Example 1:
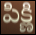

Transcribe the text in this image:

పిక్ణి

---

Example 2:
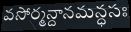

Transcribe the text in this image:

వసోర్మన్దానమన్ధసః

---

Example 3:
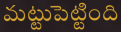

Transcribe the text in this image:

మట్టుపెట్టింది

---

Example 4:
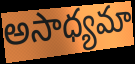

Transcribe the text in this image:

అసాధ్యమా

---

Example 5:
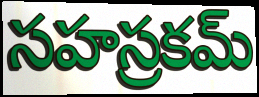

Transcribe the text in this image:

సహస్రకమ్